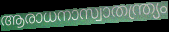
ആരാധനാസ്വാതന്ത്ര്യം